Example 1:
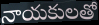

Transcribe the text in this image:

నాయకులతో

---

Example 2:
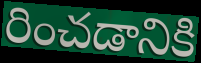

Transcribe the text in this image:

రించడానికి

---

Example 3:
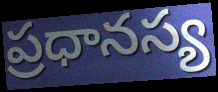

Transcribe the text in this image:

ప్రధానస్య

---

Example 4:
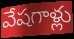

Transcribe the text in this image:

వేషగాళ్లు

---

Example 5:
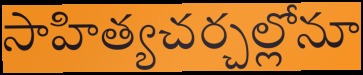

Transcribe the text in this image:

సాహిత్యచర్చల్లోనూ